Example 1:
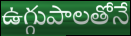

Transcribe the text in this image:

ఉగ్గుపాలతోనే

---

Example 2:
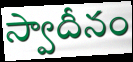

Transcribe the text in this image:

స్వాదీనం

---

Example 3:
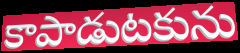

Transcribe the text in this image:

కాపాడుటకును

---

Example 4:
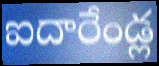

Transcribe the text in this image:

ఐదారేండ్ల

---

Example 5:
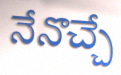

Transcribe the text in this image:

నేనొచ్చే